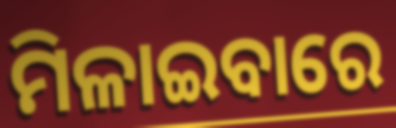
ମିଳାଇବାରେ